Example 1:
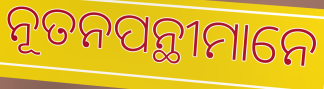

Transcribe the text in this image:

ନୂତନପନ୍ଥୀମାନେ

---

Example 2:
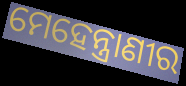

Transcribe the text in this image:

ମେହେନ୍ତ୍ରାଣୀର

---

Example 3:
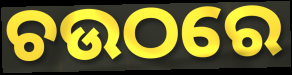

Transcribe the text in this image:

ଚଉଠରେ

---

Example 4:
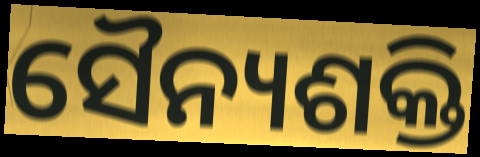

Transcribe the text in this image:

ସୈନ୍ୟଶକ୍ତି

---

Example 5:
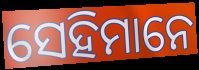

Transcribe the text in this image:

ସେହିମାନେ